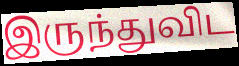
இருந்துவிட